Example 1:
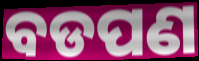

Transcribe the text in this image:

ବଡପଣ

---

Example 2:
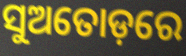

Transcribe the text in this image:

ସୁଅତୋଡ଼ରେ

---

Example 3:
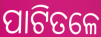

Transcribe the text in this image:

ପାଟିତଳେ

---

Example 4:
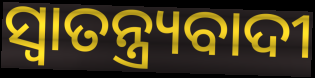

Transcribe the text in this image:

ସ୍ୱାତନ୍ତ୍ର୍ୟବାଦୀ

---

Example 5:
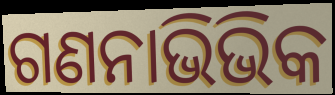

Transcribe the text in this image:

ଗଣନାଭିଭିକ